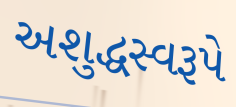
અશુદ્ધસ્વરૂપે